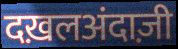
दख़लअंदाज़ी